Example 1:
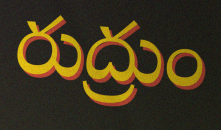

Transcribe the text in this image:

రుద్రుం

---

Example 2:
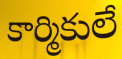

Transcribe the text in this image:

కార్మికులే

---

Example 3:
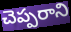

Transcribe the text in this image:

చెప్పరాని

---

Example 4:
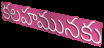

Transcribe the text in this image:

కలహమునకు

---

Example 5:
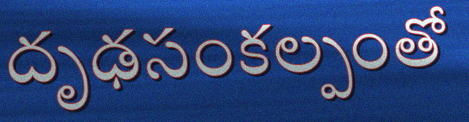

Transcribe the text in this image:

దృఢసంకల్పంతో